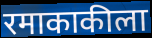
रमाकाकीला